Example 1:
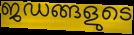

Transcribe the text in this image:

ജഡങ്ങളുടെ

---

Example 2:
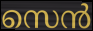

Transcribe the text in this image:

സെൻ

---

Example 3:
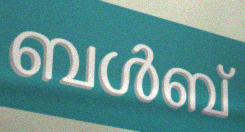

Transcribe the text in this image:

ബൾബ്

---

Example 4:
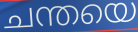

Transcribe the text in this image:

ചന്തയെ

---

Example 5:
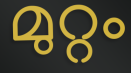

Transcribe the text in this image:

മുറ്റം